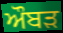
ਔਬੜ